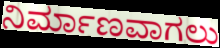
ನಿರ್ಮಾಣವಾಗಲು